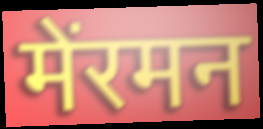
मेंरमन